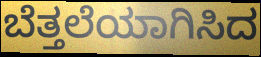
ಬೆತ್ತಲೆಯಾಗಿಸಿದ